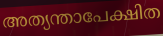
അത്യന്താപേക്ഷിത